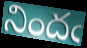
నిందఁ